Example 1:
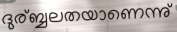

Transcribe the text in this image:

ദുര്ബ്ബലതയാണെന്നു്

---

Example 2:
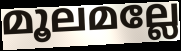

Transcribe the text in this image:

മൂലമല്ലേ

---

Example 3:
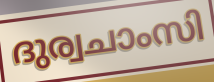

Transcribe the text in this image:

ദുര്വചാംസി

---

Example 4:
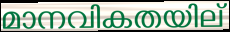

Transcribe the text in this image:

മാനവികതയില്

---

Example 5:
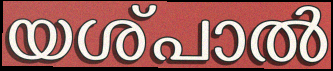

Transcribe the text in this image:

യശ്പാൽ